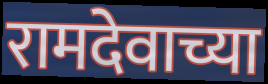
रामदेवाच्या